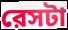
রেসটা